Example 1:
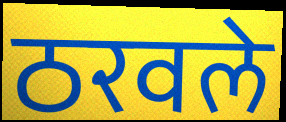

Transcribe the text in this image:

ठरवले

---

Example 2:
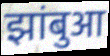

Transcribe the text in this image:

झांबुआ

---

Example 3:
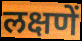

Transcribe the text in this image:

लक्षणें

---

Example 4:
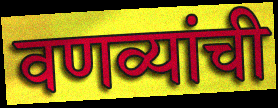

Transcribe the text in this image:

वणव्यांची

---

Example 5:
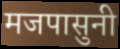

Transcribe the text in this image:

मजपासुनी